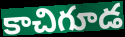
కాచిగూడ